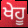
ਖੇਹੂ